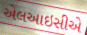
એલઆઇસીએ